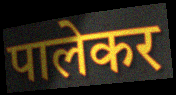
पालेकर